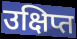
उक्षिप्त